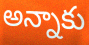
అన్నాకు